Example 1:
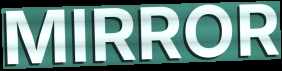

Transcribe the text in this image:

MIRROR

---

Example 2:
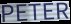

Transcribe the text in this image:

PETER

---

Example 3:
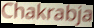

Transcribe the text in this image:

Chakrabja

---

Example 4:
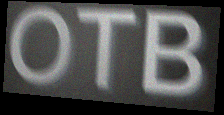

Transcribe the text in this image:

OTB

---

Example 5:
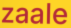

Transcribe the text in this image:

zaale